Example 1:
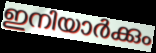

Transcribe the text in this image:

ഇനിയാർക്കും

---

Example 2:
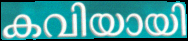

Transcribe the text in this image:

കവിയായി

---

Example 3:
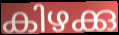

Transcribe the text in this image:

കിഴക്കു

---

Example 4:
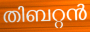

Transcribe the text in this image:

തിബറ്റൻ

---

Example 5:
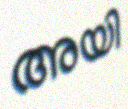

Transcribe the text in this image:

അയി